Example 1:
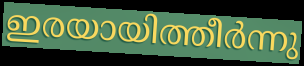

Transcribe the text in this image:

ഇരയായിത്തീർന്നു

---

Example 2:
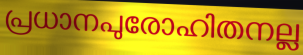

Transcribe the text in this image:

പ്രധാനപുരോഹിതനല്ല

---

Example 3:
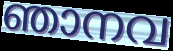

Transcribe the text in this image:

ഞാനവ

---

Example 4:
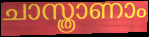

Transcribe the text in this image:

ചാസ്ത്രാണാം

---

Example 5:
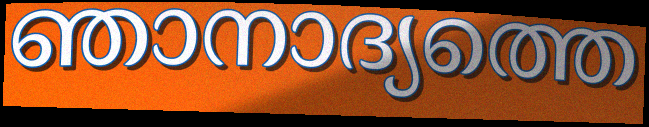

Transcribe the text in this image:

ഞാനാദ്യത്തെ